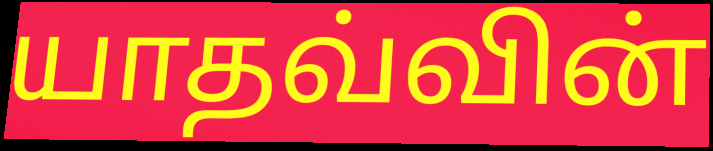
யாதவ்வின்